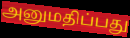
அனுமதிப்பது